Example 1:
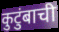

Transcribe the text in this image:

कुटुंबाची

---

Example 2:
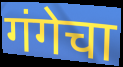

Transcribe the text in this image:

गंगेचा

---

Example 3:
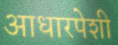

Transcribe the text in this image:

आधारपेशी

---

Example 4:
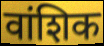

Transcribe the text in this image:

वांशिक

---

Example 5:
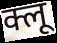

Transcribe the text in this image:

क्लू